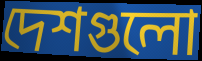
দেশগুলো